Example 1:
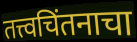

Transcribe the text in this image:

तत्त्वचिंतनाचा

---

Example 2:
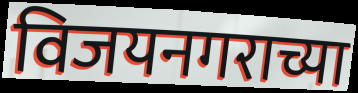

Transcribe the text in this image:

विजयनगराच्या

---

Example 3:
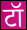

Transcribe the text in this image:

टॉ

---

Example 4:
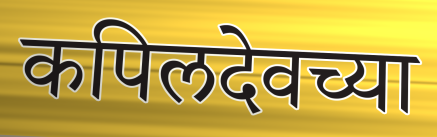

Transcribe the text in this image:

कपिलदेवच्या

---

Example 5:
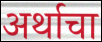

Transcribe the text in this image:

अर्थाचा